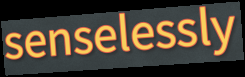
senselessly